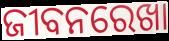
ଜୀବନରେଖା